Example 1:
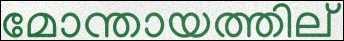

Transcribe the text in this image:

മോന്തായത്തില്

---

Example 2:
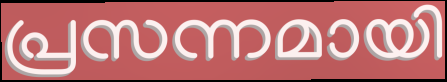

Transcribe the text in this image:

പ്രസന്നമായി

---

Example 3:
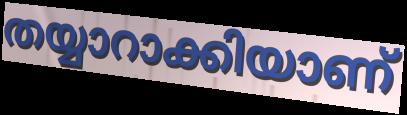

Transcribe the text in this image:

തയ്യാറാക്കിയാണ്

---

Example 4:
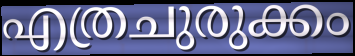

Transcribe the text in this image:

എത്രചുരുക്കം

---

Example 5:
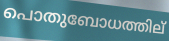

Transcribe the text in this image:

പൊതുബോധത്തില്